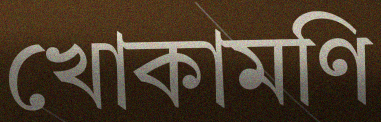
খোকামণি